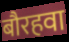
बौरहवा